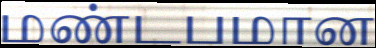
மண்டபமான